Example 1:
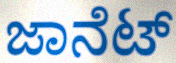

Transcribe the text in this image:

ಜಾನೆಟ್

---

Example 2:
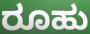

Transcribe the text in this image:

ರೂಹು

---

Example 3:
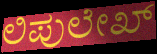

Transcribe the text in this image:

ಲಿಪುಲೇಖ್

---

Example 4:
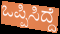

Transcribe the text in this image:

ಒಪ್ಪಿಸಿದ್ದೆ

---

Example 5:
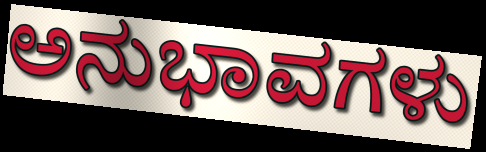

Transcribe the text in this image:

ಅನುಭಾವಗಳು